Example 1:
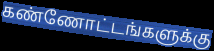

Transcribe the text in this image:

கண்ணோட்டங்களுக்கு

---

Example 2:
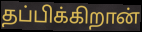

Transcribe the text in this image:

தப்பிக்கிறான்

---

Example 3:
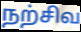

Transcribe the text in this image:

நற்சிவ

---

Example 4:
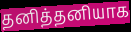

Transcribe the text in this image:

தனித்தனியாக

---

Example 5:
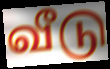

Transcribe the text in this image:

வீடு